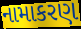
નામાકરણ